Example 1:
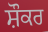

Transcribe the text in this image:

ਸ਼ੌਕਰ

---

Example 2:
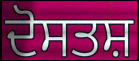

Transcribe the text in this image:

ਦੋਸਤਸ਼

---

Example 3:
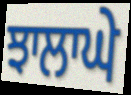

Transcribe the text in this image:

ਝਾਲਾਘੇ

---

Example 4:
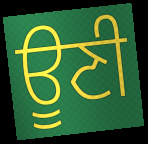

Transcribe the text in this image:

ਊਣੀ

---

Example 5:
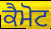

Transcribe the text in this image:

ਕੈਮੋਟ